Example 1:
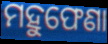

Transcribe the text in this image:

ମହୁଫେଣା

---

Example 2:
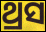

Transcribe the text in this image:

ଥ୍ରସ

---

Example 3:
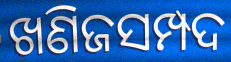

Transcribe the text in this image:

ଖଣିଜସମ୍ପଦ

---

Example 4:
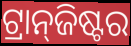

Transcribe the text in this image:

ଟ୍ରାନ୍‍ଜିଷ୍ଟର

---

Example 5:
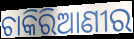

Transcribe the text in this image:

ଚାକିରିଆଣୀର